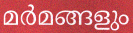
മർമങ്ങളും